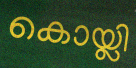
കൊയ്ലി